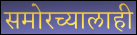
समोरच्यालाही